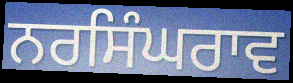
ਨਰਸਿੰਘਰਾਵ